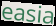
easia